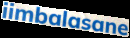
iimbalasane